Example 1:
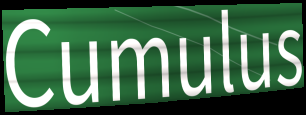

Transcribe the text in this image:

Cumulus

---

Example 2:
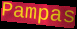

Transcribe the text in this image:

Pampas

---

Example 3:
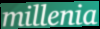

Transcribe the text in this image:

millenia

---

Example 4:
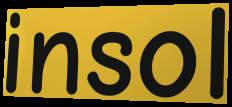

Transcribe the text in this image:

insol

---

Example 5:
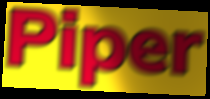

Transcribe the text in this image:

Piper